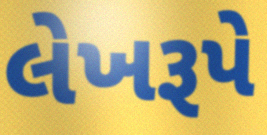
લેખરૂપે